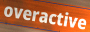
overactive